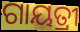
ଗାୟତ୍ରୀ